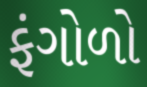
ફંગોળો